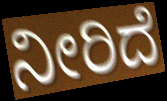
ನೀರಿದೆ